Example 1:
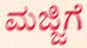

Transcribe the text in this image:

ಮಜ್ಜಿಗೆ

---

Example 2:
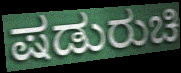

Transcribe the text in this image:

ಷಡುರುಚಿ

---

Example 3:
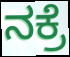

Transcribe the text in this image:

ನಕ್ರೆ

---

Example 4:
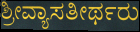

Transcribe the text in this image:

ಶ್ರೀವ್ಯಾಸತೀರ್ಥರು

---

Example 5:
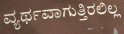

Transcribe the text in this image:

ವ್ಯರ್ಥವಾಗುತ್ತಿರಲಿಲ್ಲ